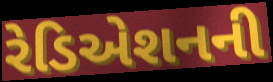
રેડિએશનની